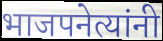
भाजपनेत्यांनी